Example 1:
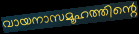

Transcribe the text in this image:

വായനാസമൂഹത്തിന്റെ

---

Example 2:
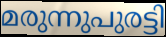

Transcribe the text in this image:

മരുന്നുപുരട്ടി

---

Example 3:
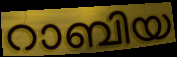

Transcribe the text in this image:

റാബിയ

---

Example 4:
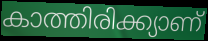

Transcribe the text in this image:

കാത്തിരിക്ക്യാണ്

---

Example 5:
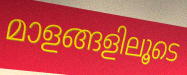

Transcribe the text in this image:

മാളങ്ങളിലൂടെ